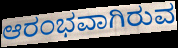
ಆರಂಭವಾಗಿರುವ